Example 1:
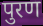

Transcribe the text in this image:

पुरण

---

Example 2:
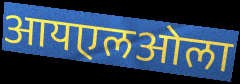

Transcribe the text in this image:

आयएलओला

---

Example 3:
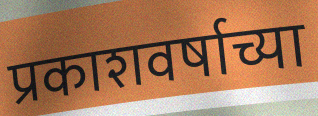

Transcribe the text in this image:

प्रकाशवर्षाच्या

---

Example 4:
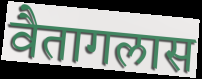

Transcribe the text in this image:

वैतागलास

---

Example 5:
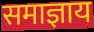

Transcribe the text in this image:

समाज्ञाय